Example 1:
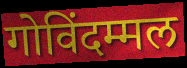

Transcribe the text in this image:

गोविंदम्मल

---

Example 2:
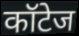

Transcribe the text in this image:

कॉटेज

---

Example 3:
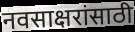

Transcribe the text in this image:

नवसाक्षरांसाठी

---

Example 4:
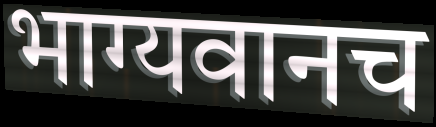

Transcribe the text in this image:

भाग्यवानच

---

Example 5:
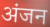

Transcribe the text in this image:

अंजन